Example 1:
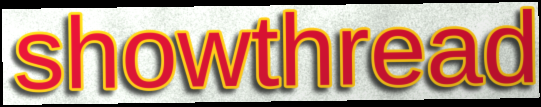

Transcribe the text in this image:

showthread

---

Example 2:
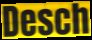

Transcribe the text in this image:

Desch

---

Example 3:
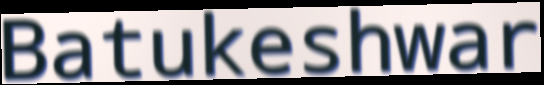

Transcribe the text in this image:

Batukeshwar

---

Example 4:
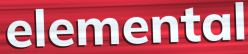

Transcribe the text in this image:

elemental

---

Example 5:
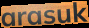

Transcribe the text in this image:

arasuk